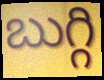
బుగ్గి